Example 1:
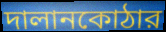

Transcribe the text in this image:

দালানকোঠার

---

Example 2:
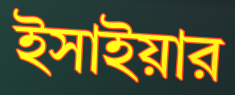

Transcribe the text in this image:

ইসাইয়ার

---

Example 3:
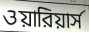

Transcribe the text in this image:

ওয়ারিয়ার্স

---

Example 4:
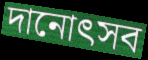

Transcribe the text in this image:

দানোৎসব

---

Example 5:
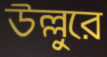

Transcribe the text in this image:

উল্লুরে